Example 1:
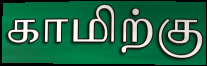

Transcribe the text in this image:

காமிற்கு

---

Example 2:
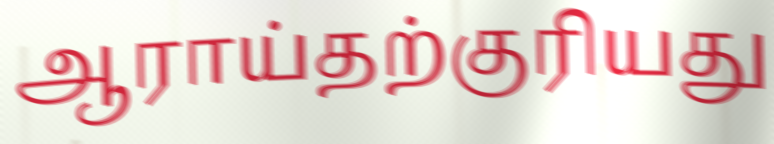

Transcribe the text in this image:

ஆராய்தற்குரியது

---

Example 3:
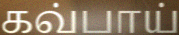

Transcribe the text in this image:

கவ்பாய்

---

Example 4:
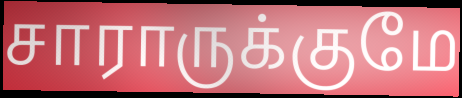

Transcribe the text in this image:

சாராருக்குமே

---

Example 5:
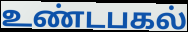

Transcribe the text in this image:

உண்டபகல்